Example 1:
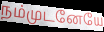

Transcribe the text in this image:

நம்முடனேயே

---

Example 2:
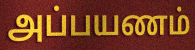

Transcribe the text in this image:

அப்பயணம்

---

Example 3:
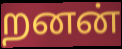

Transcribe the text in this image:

றனன்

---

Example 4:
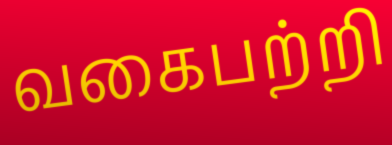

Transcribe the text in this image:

வகைபற்றி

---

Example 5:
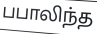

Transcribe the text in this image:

பபாலிந்த